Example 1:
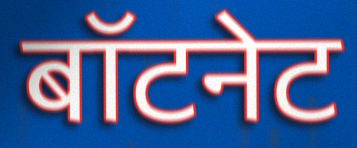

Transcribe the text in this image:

बॉटनेट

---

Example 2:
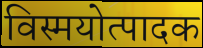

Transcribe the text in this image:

विस्मयोत्पादक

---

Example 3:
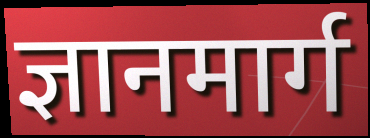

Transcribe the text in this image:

ज्ञानमार्ग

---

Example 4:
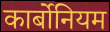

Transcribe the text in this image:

कार्बोनियम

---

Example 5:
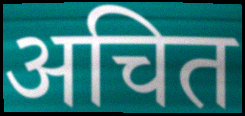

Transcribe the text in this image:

अचित